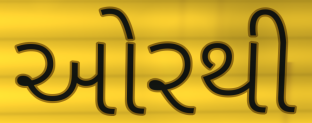
ઓરથી